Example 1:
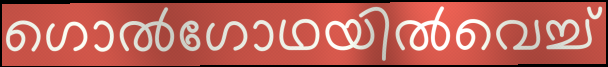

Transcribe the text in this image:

ഗൊൽഗോഥയിൽവെച്ച്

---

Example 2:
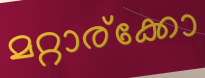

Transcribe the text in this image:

മറ്റാര്ക്കോ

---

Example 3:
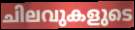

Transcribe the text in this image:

ചിലവുകളുടെ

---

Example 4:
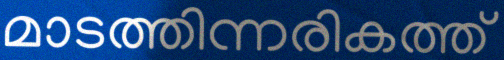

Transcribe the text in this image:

മാടത്തിന്നരികത്ത്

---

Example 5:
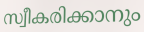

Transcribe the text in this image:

സ്വീകരിക്കാനും